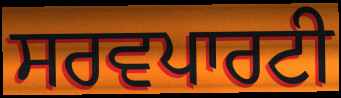
ਸਰਵਪਾਰਟੀ